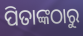
ପିତାଙ୍କଠାରୁ